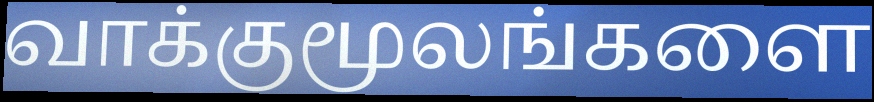
வாக்குமூலங்களை